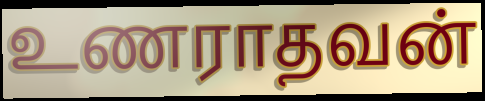
உணராதவன்